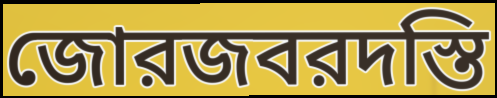
জোরজবরদস্তি